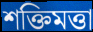
শক্তিমত্তা